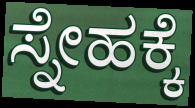
ಸ್ನೇಹಕ್ಕೆ